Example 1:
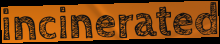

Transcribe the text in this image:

incinerated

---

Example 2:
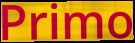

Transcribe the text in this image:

Primo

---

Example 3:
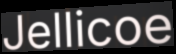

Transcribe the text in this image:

Jellicoe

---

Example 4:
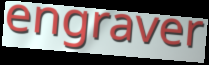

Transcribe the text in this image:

engraver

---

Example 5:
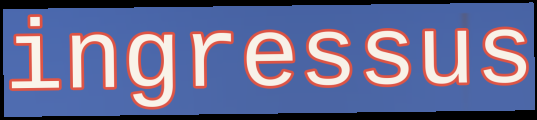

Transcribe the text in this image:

ingressus